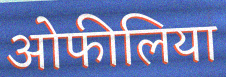
ओफीलिया